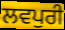
ਲਵਪੁਰੀ